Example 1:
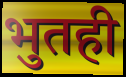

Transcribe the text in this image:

भुतही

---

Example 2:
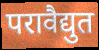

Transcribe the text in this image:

परावैद्युत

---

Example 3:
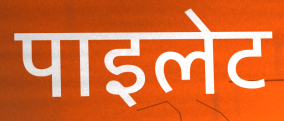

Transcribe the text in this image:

पाइलेट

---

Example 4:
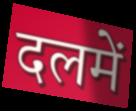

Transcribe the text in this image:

दलमें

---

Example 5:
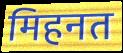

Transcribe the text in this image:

मिहनत